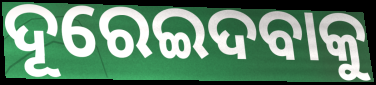
ଦୂରେଇଦବାକୁ